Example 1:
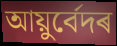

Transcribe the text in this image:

আয়ুৰ্বেদৰ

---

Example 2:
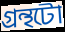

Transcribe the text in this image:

গ্ৰন্থটো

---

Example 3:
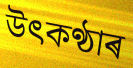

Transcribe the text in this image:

উৎকণ্ঠাৰ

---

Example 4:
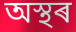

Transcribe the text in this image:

অস্থৰ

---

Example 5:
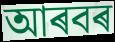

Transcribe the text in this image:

আৰবৰ